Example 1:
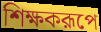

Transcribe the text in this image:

শিক্ষকরূপে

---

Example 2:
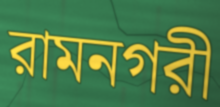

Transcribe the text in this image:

রামনগরী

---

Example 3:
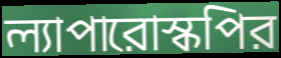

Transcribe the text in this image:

ল্যাপারোস্কপির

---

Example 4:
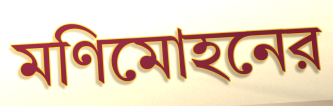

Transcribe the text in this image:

মণিমোহনের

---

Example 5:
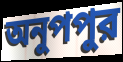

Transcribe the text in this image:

অনুপপুর